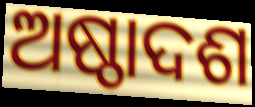
ଅଷ୍ଠାଦଶ